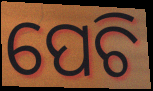
ପେଚି